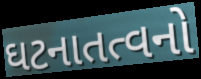
ઘટનાતત્વનો